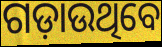
ଗଡ଼ାଉଥିବେ